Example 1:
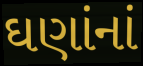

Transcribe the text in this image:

ઘણાંનાં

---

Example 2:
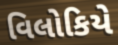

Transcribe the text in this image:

વિલોકિયે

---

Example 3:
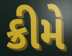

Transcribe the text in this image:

ક્રીમે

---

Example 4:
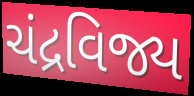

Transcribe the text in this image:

ચંદ્રવિજ્ય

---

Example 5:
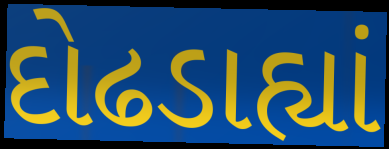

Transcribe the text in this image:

દોઢડાહ્યાં